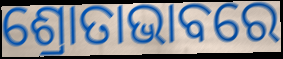
ଶ୍ରୋତାଭାବରେ